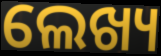
ଲେଖ୍ୟ